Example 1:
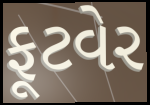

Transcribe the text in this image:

ફૂટવેર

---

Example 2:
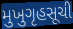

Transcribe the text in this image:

મુખુગૃહસૂચી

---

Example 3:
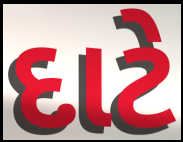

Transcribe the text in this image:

દાટે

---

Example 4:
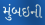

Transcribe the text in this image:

મુંબઇની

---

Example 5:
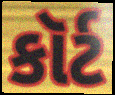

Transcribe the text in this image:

કૉર્ટ